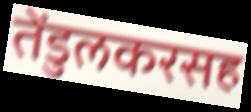
तेंडुलकरसह